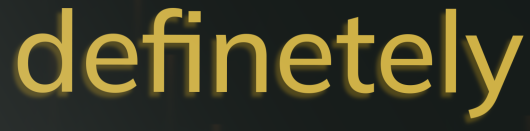
definetely